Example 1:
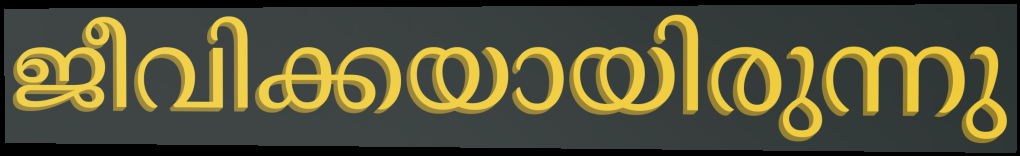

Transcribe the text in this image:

ജീവിക്കയായിരുന്നു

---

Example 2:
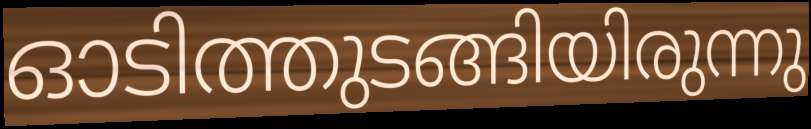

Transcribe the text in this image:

ഓടിത്തുടങ്ങിയിരുന്നു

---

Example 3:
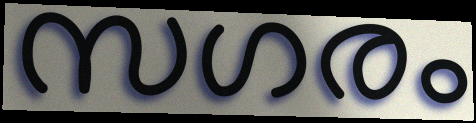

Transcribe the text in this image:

സഗരം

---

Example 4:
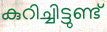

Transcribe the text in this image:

കുറിച്ചിട്ടുണ്ട്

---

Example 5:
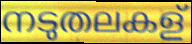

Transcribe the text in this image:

നടുതലകള്